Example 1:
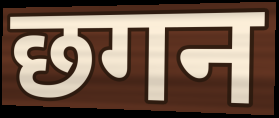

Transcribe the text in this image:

छगन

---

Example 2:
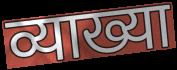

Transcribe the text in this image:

व्याख्या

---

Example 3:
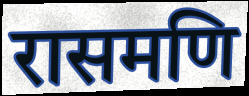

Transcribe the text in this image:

रासमणि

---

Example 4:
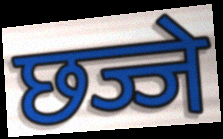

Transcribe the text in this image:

छज्जे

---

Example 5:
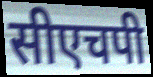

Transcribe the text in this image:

सीएचपी